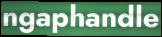
ngaphandle